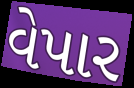
વેપાર